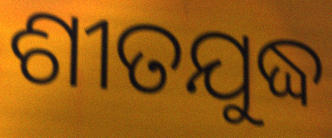
ଶୀତଯୁଦ୍ଧ